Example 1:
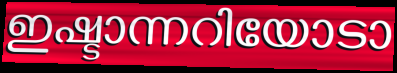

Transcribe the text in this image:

ഇഷ്ടാന്നറിയോടാ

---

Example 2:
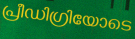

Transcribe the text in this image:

പ്രീഡിഗ്രിയോടെ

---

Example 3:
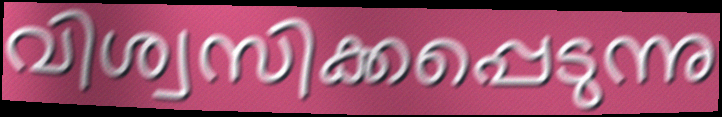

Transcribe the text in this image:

വിശ്വസിക്കപ്പെടുന്നു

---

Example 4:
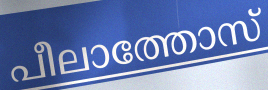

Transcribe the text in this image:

പീലാത്തോസ്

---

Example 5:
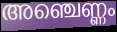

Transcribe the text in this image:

അഞ്ചെണ്ണം